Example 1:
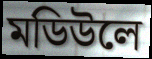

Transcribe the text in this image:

মডিউলে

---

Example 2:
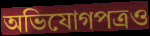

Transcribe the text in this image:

অভিযোগপত্রও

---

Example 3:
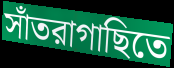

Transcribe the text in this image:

সাঁতরাগাছিতে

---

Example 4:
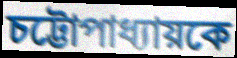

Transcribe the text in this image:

চট্টোপাধ্যায়কে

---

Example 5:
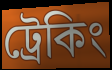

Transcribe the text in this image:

ট্রেকিং